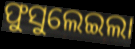
ଫୁସୁଲେଇଲା